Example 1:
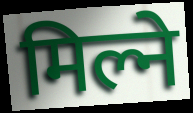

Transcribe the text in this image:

मिल्ने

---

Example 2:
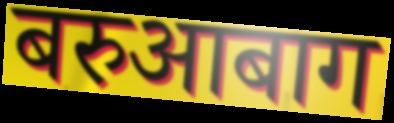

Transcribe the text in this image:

बरुआबाग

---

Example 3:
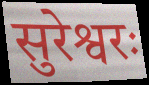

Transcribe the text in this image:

सुरेश्वरः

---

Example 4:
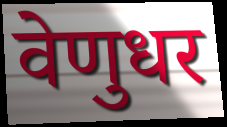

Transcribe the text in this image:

वेणुधर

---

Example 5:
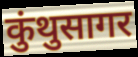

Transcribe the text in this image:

कुंथुसागर